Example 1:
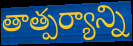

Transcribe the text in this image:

తాత్పర్యాన్ని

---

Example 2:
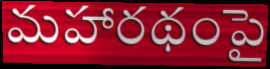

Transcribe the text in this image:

మహారథంపై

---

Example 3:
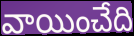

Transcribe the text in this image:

వాయించేది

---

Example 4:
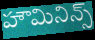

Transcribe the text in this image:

హౌమినిన్స్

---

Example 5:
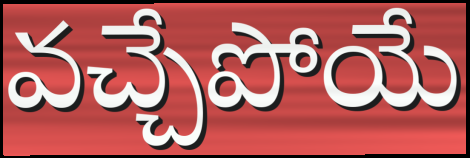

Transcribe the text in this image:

వచ్చేపోయే